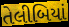
તેલીબિયાં